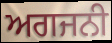
ਅਗਜਨੀ